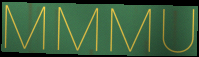
MMMU